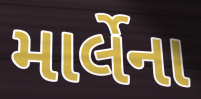
માર્લેના